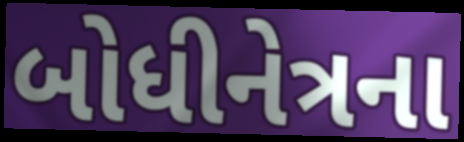
બોધીનેત્રના